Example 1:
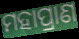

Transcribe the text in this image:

ମହାପ୍ରାଣ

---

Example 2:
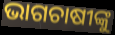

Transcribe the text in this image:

ଭାଗଚାଷୀଙ୍କୁ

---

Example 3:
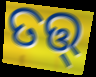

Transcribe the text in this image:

ତତ୍ତ୍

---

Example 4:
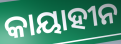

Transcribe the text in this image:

କାୟାହୀନ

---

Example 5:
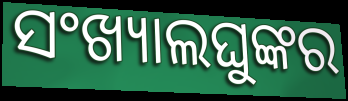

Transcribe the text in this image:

ସଂଖ୍ୟାଲଘୁଙ୍କର